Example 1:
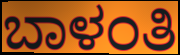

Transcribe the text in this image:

ಬಾಳಂತಿ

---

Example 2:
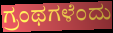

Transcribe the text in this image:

ಗ್ರಂಥಗಳೆಂದು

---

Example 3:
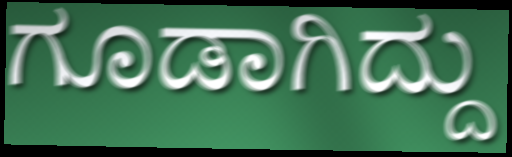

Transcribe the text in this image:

ಗೂಡಾಗಿದ್ದು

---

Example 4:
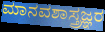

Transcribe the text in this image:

ಮಾನವಶಾಸ್ತ್ರಜ್ಞರ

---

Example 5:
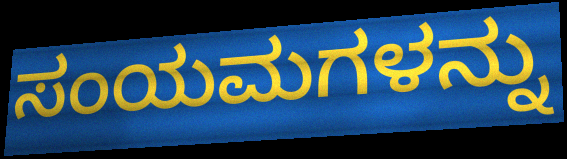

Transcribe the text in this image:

ಸಂಯಮಗಳನ್ನು